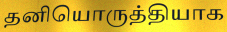
தனியொருத்தியாக